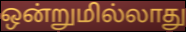
ஒன்றுமில்லாது